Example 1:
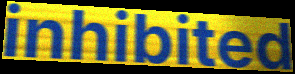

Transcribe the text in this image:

inhibited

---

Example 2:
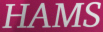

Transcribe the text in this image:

HAMS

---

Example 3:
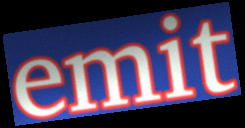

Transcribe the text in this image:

emit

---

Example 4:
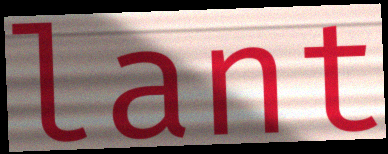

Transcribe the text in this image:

lant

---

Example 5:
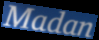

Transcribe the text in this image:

Madan